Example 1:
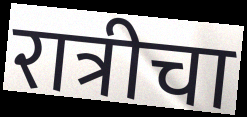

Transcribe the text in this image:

रात्रीचा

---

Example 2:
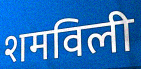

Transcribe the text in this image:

शमविली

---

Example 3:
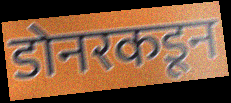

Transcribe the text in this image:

डोनरकडून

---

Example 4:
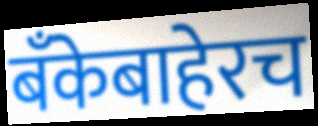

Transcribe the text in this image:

बँकेबाहेरच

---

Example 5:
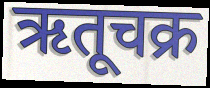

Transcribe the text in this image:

ऋतूचक्र